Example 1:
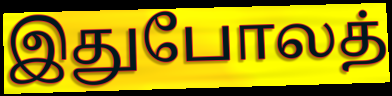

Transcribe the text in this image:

இதுபோலத்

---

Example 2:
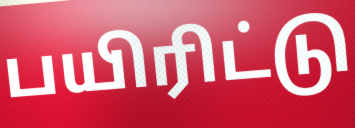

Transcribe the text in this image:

பயிரிட்டு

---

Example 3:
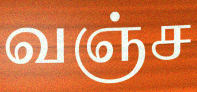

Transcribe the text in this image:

வஞ்ச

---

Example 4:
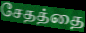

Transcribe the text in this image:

சேதத்தை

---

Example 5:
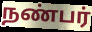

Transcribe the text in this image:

நண்பர்